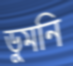
ডুমনি